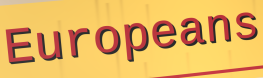
Europeans